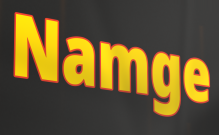
Namge